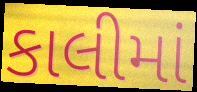
કાલીમાં